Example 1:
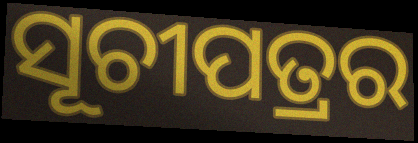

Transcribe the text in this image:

ସୂଚୀପତ୍ରର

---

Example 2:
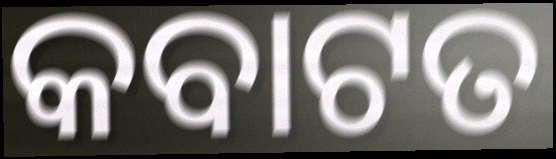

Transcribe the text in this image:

କବାଟତ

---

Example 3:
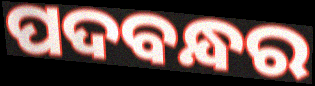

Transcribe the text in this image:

ପଦବନ୍ଧର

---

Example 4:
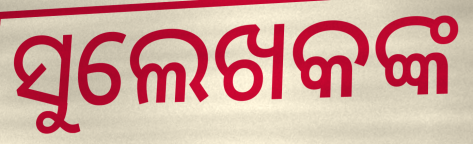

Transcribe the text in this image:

ସୁଲେଖକଙ୍କ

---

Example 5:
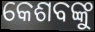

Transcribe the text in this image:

କେଶବଙ୍କୁ